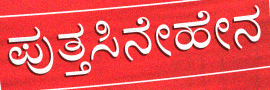
ಪುತ್ತಸಿನೇಹೇನ